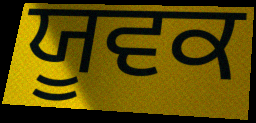
ਯੂਵਕ